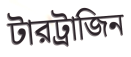
টারট্রাজিন